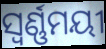
ସ୍ୱର୍ଣ୍ଣମୟୀ